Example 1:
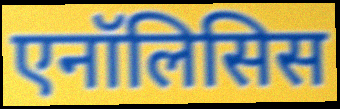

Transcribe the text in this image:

एनॉलिसिस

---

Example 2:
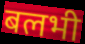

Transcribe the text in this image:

बलभी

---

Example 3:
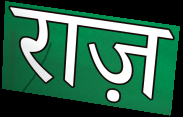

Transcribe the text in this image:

राज़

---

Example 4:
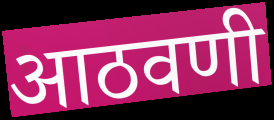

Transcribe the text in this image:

आठवणी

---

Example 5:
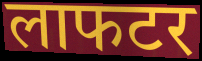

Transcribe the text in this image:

लाफटर